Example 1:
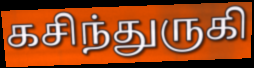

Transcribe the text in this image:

கசிந்துருகி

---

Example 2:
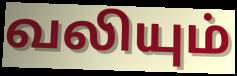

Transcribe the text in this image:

வலியும்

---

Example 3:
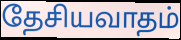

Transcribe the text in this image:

தேசியவாதம்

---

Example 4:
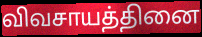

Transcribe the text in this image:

விவசாயத்தினை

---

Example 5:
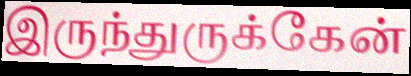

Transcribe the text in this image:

இருந்துருக்கேன்